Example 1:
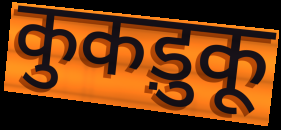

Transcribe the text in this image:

कुकड़ुकू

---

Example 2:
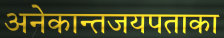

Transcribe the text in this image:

अनेकान्तजयपताका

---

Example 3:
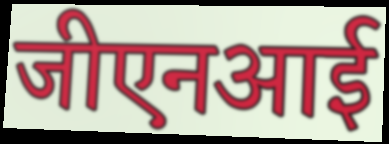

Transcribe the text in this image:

जीएनआई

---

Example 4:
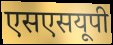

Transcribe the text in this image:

एसएसयूपी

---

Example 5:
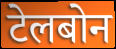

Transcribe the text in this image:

टेलबोन